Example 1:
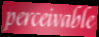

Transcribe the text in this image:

perceivable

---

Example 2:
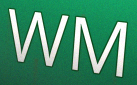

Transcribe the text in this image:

WM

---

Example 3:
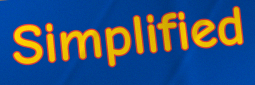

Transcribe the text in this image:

Simplified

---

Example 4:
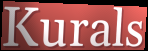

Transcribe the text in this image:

Kurals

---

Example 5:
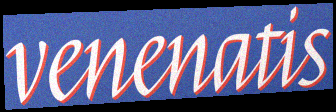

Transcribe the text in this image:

venenatis